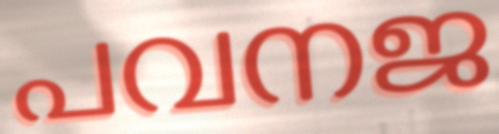
പവനജ